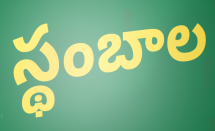
స్థంబాల